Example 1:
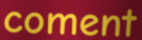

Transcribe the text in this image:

coment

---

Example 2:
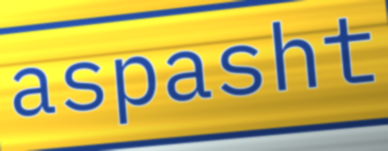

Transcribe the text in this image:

aspasht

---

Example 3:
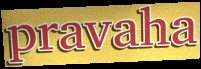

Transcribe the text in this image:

pravaha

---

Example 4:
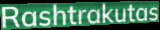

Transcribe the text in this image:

Rashtrakutas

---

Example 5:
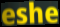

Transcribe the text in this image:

eshe